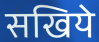
सखिये